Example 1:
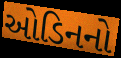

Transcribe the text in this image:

ઓડિનનો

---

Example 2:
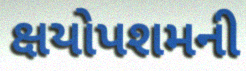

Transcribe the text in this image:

ક્ષયોપશમની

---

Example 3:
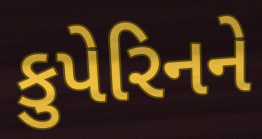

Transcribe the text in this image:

કુપેરિનને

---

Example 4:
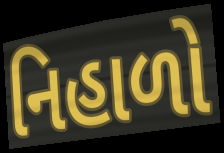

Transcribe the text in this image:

નિહાળો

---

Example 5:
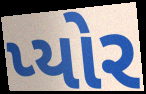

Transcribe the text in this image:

પ્યોર